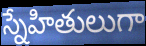
స్నేహితులుగా